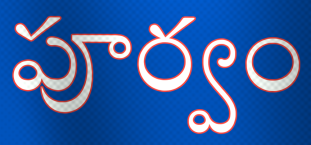
పూర్వం